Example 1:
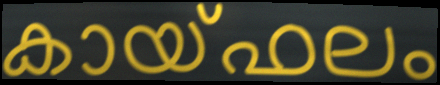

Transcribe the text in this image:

കായ്ഫലം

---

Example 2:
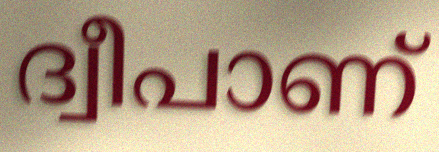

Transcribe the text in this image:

ദ്വീപാണ്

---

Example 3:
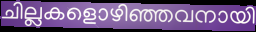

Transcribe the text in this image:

ചില്ലകളൊഴിഞ്ഞവനായി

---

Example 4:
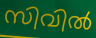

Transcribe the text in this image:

സിവിൽ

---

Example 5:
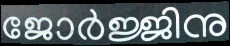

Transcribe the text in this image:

ജോർജ്ജിനു